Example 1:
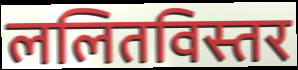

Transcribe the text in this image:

ललितविस्तर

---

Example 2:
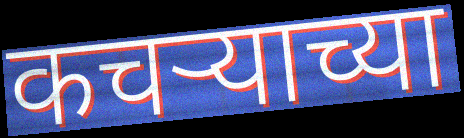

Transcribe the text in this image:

कचर्‍याच्या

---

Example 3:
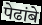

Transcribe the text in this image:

पेढांबे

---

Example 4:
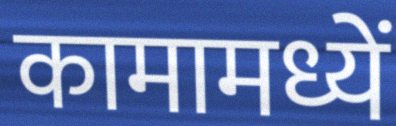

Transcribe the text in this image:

कामामध्यें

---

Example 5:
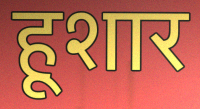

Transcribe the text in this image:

हूशार